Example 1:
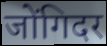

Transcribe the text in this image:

जोंगिदर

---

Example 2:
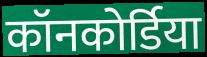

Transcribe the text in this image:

कॉनकोर्डिया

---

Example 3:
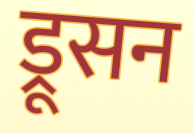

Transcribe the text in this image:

ड्रूसन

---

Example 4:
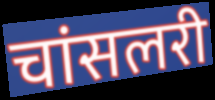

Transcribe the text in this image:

चांसलरी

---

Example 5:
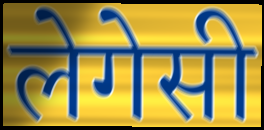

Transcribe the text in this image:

लेगेसी